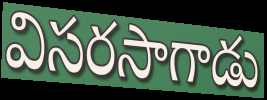
విసరసాగాడు